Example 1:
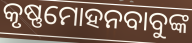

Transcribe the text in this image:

କୃଷ୍ଣମୋହନବାବୁଙ୍କ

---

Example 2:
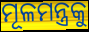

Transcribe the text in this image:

ମୂଳମନ୍ତ୍ରକୁ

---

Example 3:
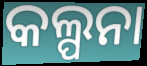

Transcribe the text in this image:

କଲ୍ପନା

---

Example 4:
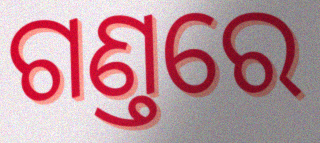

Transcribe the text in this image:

ଗଣ୍ତରେ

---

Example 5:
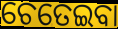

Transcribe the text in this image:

ଚେତେଇବା